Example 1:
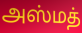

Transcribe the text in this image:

அஸ்மத்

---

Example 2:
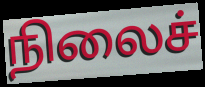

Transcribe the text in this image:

நிலைச்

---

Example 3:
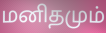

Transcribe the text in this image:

மனிதமும்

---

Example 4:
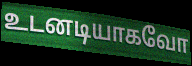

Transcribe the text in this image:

உடனடியாகவோ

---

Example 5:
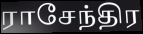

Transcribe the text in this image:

ராசேந்திர